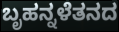
ಬೃಹನ್ನಳೆತನದ